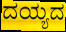
ದಯ್ಯದ